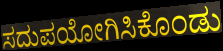
ಸದುಪಯೋಗಿಸಿಕೊಂಡು